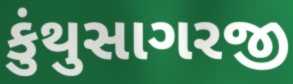
કુંથુસાગરજી